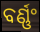
ବର୍ଣ୍ଣଂ